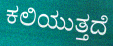
ಕಲಿಯುತ್ತದೆ